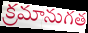
క్రమానుగత